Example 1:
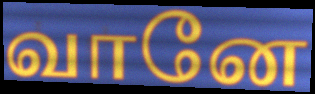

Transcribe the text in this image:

வானே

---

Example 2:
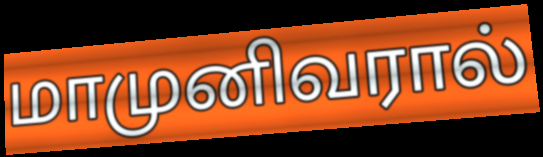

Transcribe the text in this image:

மாமுனிவரால்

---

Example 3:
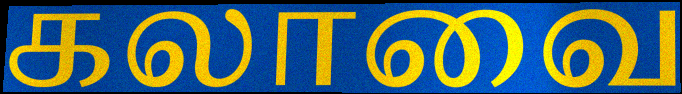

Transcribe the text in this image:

கலாவை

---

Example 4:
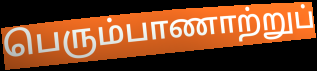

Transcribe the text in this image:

பெரும்பாணாற்றுப்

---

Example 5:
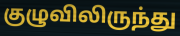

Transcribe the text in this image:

குழுவிலிருந்து